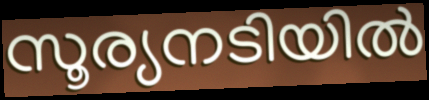
സൂര്യനടിയിൽ